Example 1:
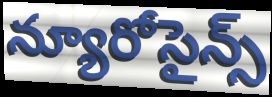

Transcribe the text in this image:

న్యూరోసైన్స్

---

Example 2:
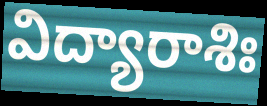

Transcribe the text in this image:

విద్యారాశిః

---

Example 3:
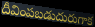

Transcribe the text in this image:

దీవింపబడుదురుగాక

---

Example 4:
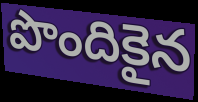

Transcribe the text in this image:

పొందికైన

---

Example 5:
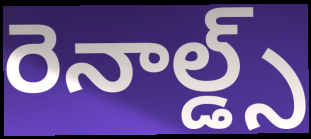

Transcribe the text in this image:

రెనాల్డ్స్